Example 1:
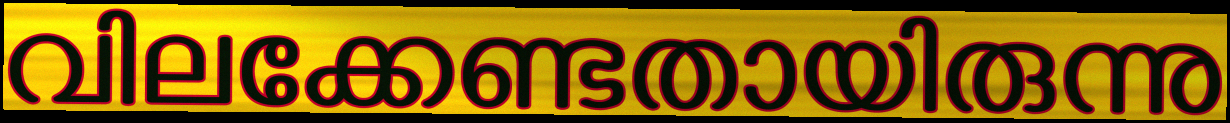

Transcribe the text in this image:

വിലക്കേണ്ടതായിരുന്നു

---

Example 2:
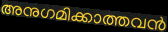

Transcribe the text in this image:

അനുഗമിക്കാത്തവൻ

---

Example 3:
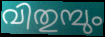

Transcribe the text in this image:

വിതുമ്പും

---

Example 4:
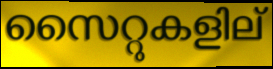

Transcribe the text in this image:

സൈറ്റുകളില്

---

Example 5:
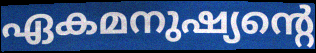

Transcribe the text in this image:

ഏകമനുഷ്യന്റെ